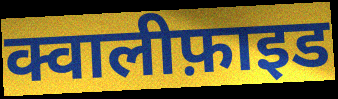
क्वालीफ़ाइड